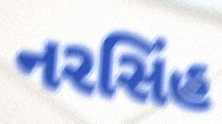
નરસિંહ